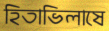
হিতাভিলাষে